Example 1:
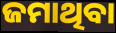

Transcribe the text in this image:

ଜମାଥିବା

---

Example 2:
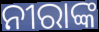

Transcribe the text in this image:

ନୀରାଙ୍କ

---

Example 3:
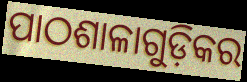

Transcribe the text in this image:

ପାଠଶାଳାଗୁଡ଼ିକର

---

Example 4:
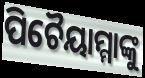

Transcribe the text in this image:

ପିଚୈୟାମ୍ମାଙ୍କୁ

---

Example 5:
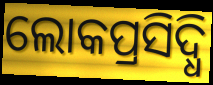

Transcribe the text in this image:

ଲୋକପ୍ରସିଦ୍ଧି